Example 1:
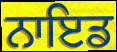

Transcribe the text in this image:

ਨਾਇਡ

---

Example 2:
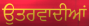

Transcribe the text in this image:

ਉਤਰਵਾਦੀਆਂ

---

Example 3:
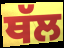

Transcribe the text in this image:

ਥੱਲ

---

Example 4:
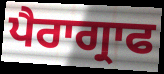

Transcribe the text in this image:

ਪੈਰਾਗ੍ਰਾਫ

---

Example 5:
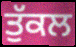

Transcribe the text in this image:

ਤੁੱਕਲ